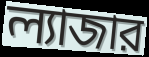
ল্যাজার